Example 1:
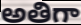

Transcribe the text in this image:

అతిగా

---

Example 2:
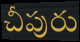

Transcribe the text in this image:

చీపురు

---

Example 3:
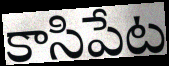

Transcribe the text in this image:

కాసిపేట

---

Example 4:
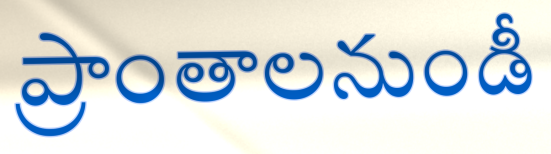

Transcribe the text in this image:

ప్రాంతాలనుండీ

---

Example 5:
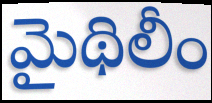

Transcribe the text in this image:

మైథిలీం